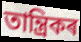
তান্ত্ৰিকৰ